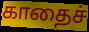
காதைச்